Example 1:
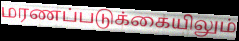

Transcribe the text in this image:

மரணப்படுக்கையிலும்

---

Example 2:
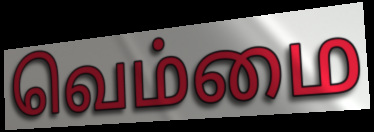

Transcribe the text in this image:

வெம்மை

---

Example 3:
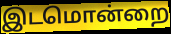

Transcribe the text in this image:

இடமொன்றை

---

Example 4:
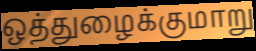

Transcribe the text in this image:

ஒத்துழைக்குமாறு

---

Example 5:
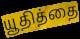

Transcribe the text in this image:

யூதித்தை